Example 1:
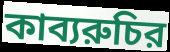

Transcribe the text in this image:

কাব্যরুচির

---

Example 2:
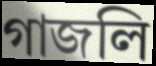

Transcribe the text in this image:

গাজলি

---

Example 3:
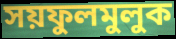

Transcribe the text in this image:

সয়ফুলমুলুক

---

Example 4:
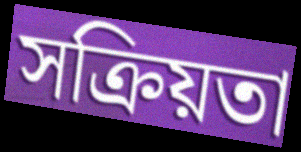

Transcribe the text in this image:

সক্রিয়তা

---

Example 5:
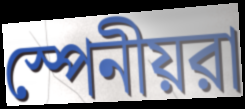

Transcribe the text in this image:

স্পেনীয়রা